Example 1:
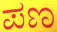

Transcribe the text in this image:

ಪಣ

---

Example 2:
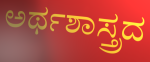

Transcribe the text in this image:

ಅರ್ಥಶಾಸ್ತ್ರದ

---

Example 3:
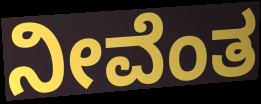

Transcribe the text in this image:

ನೀವೆಂತ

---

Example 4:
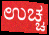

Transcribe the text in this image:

ಉಚ್ಚ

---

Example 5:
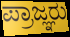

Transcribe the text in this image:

ಪ್ರಾಜ್ಞರು